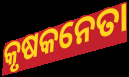
କୃଷକନେତା